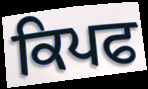
ਕਿਪਫ